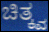
ಚಿತ್ಕ್ವ